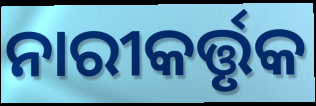
ନାରୀକର୍ତ୍ତୃକ